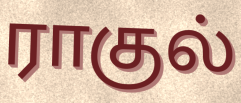
ராகுல்